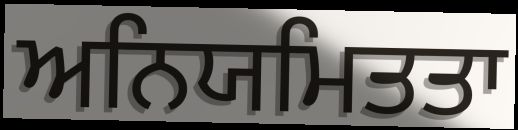
ਅਨਿਯਮਿਤਤਾ